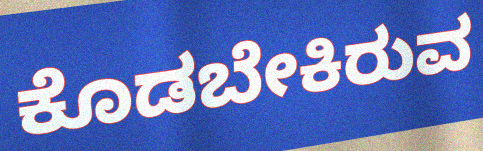
ಕೊಡಬೇಕಿರುವ